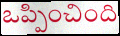
ఒప్పించింది